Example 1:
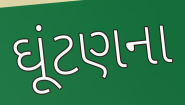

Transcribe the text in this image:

ઘૂંટણના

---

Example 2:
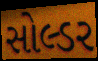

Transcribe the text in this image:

સોલ્ડર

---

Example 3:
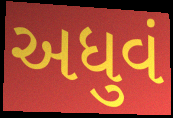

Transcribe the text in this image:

અધુવં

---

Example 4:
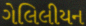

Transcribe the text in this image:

ગેલિલીયન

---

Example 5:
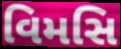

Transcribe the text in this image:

વિમસિ